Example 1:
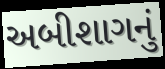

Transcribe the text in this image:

અબીશાગનું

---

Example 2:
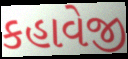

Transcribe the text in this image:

કહાવેજી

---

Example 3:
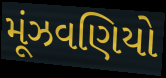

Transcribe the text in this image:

મૂંઝવણિયો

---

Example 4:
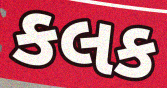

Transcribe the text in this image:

કલક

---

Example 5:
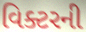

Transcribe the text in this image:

વિક્ટરની